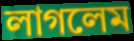
লাগলেম